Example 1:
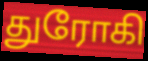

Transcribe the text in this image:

துரோகி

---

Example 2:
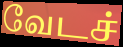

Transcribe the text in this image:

வேடச்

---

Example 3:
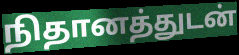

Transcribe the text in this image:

நிதானத்துடன்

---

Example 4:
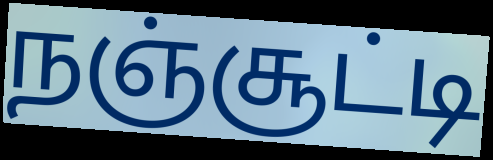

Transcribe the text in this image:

நஞ்சூட்டி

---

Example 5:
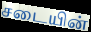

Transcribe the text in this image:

சடையின்